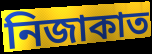
নিজাকাত